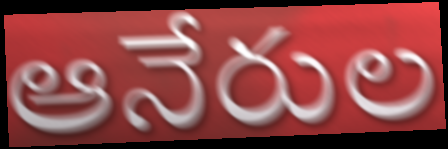
ఆనేరుల